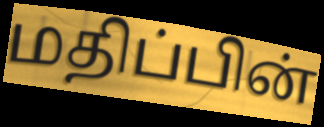
மதிப்பின்